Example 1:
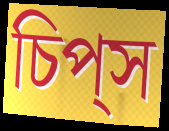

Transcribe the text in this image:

চিপ্‌স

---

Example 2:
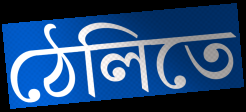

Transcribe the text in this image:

ঠেলিতে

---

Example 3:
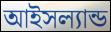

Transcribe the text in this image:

আইসল্যান্ড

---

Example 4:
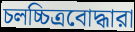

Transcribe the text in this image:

চলচ্চিত্রবোদ্ধারা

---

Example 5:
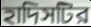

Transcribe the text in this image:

হাদিসটির